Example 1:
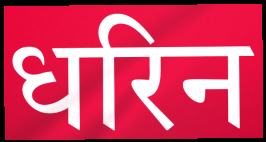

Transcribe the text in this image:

धरिन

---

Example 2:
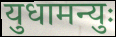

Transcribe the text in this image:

युधामन्युः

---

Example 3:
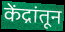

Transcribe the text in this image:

केंद्रांतून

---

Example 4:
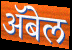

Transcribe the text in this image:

ॲबेल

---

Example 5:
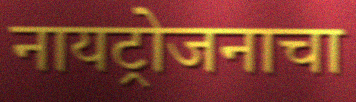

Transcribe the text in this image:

नायट्रोजनाचा